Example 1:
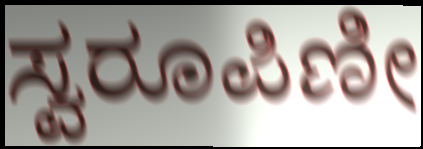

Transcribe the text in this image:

ಸ್ವರೂಪಿಣೀ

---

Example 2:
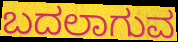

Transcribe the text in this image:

ಬದಲಾಗುವ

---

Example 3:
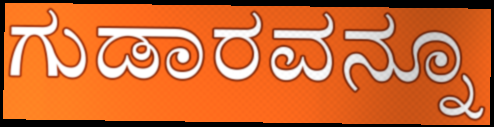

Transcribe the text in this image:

ಗುಡಾರವನ್ನೂ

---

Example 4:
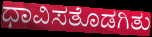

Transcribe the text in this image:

ಧಾವಿಸತೊಡಗಿತು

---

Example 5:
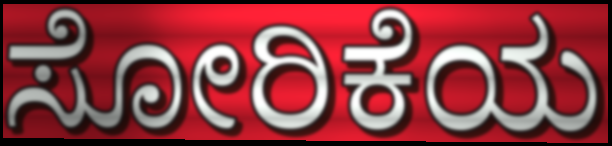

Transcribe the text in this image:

ಸೋರಿಕೆಯ